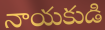
నాయకుడి